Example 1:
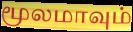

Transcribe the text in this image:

மூலமாவும்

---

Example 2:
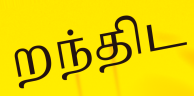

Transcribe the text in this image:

றந்திட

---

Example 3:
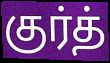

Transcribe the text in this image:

குர்த்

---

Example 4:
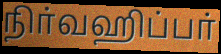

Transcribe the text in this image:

நிர்வஹிப்பர்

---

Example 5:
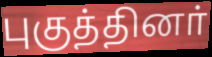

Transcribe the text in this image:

புகுத்தினர்